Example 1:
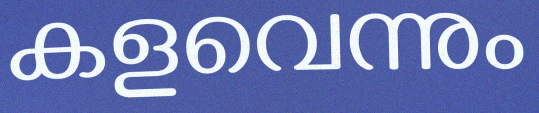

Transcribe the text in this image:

കളവെന്നും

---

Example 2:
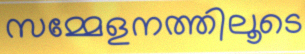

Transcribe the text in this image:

സമ്മേളനത്തിലൂടെ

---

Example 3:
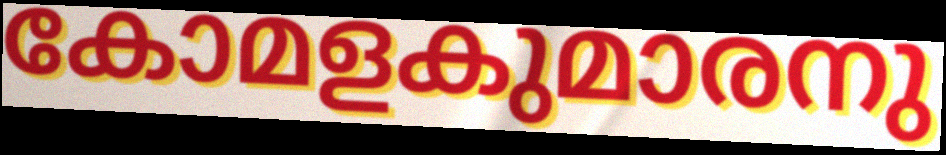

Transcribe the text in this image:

കോമളകുമാരനു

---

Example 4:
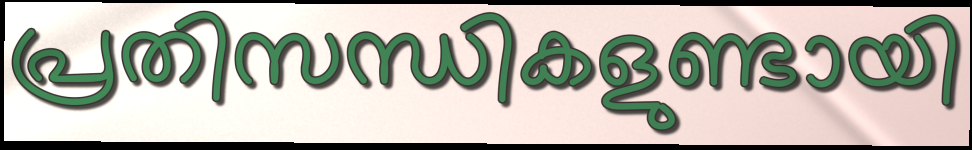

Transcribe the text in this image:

പ്രതിസന്ധികളുണ്ടായി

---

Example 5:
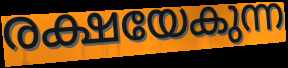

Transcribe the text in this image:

രക്ഷയേകുന്ന